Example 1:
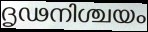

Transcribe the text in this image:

ദൃഢനിശ്ചയം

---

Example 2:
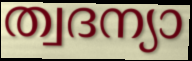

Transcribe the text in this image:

ത്വദന്യാ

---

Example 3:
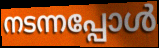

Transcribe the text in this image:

നടന്നപ്പോൾ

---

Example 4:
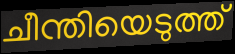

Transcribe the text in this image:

ചീന്തിയെടുത്ത്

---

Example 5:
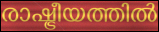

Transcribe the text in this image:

രാഷ്ട്രീയത്തിൽ